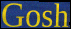
Gosh